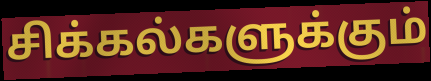
சிக்கல்களுக்கும்